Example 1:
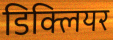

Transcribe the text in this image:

डिक्लियर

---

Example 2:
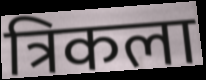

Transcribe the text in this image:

त्रिकला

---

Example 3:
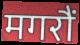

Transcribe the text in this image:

मगरौं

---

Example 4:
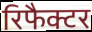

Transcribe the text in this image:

रिफैक्टर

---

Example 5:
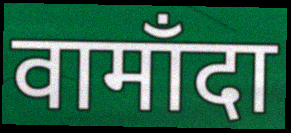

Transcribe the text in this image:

वामाँदा